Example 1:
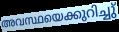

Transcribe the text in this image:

അവസ്ഥയെക്കുറിച്ചു്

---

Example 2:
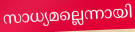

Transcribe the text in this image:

സാധ്യമല്ലെന്നായി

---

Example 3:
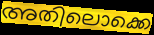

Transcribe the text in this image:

അതിലൊക്കെ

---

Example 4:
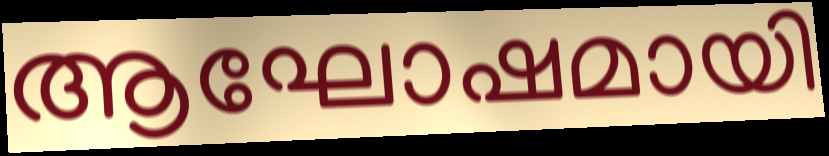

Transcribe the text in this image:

ആഘോഷമായി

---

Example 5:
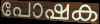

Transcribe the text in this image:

പോഷക